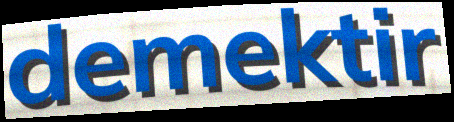
demektir